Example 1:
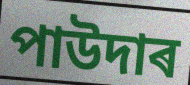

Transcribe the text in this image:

পাউদাৰ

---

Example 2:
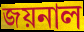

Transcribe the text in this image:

জয়নাল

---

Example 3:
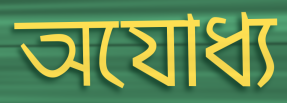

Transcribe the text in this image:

অযোধ্য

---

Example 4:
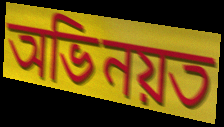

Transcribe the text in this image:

অভিনয়ত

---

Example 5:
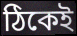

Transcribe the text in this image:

ঠিকেই